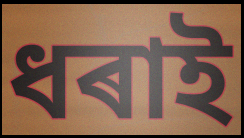
ধৰাই